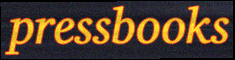
pressbooks